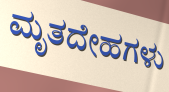
ಮೃತದೇಹಗಳು